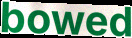
bowed